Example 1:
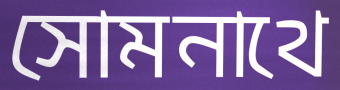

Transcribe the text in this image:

সোমনাথে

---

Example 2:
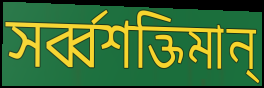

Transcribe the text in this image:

সর্ব্বশক্তিমান্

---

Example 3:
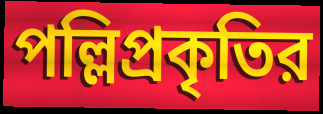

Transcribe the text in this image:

পল্লিপ্রকৃতির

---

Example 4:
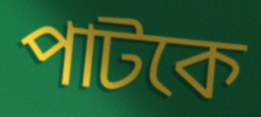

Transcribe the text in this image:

পাটকে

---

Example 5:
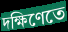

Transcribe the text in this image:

দক্ষিণেতে